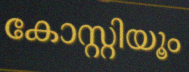
കോസ്റ്റിയൂം